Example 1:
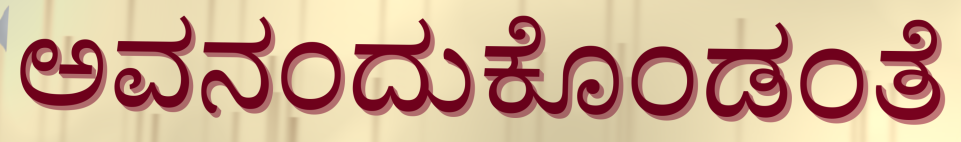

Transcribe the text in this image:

ಅವನಂದುಕೊಂಡಂತೆ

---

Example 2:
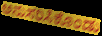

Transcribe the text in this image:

ಅನುಸರಿಸಿಕೊಂಡು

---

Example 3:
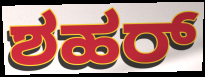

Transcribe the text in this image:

ಶಹರ್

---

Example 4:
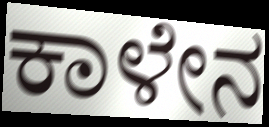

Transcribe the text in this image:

ಕಾಳೇನ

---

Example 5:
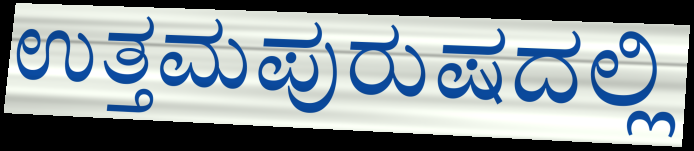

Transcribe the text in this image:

ಉತ್ತಮಪುರುಷದಲ್ಲಿ